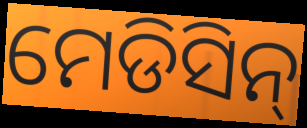
ମେଡିସିନ୍